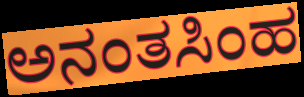
ಅನಂತಸಿಂಹ